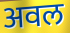
अवल